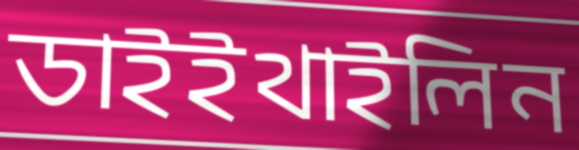
ডাইইথাইলিন